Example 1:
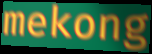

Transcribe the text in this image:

mekong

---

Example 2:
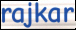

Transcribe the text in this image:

rajkar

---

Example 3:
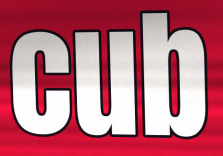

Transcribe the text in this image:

cub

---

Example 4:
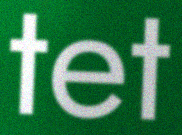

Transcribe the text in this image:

tet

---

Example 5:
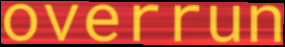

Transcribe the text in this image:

overrun